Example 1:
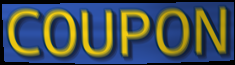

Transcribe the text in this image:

COUPON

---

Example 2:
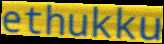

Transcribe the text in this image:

ethukku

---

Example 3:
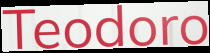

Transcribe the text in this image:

Teodoro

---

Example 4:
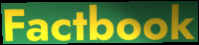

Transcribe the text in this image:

Factbook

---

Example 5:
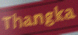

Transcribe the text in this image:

Thangka